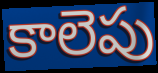
కాలెపు